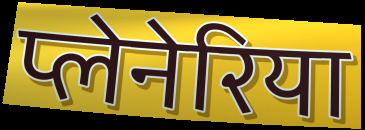
प्लेनेरिया